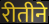
रीतीने